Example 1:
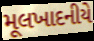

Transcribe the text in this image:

મૂલખાદનીયે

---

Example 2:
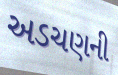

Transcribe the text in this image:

અડચણની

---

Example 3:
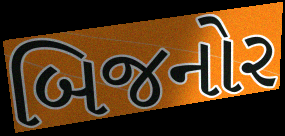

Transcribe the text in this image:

બિજનોર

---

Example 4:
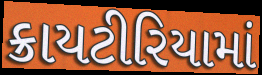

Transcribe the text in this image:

ક્રાયટીરિયામાં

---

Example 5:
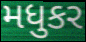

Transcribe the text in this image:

મધુકર